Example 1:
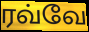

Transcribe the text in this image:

ரவ்வே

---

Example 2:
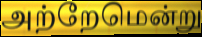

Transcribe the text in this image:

அற்றேமென்று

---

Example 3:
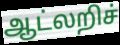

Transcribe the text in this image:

ஆட்லறிச்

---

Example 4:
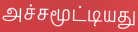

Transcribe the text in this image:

அச்சமூட்டியது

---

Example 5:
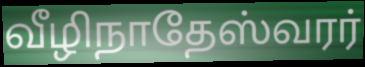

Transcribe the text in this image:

வீழிநாதேஸ்வரர்